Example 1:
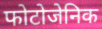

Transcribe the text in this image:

फोटोजेनिक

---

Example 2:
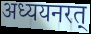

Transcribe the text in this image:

अध्ययनरत्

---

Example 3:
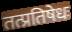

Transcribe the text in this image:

तत्प्रतिषेधः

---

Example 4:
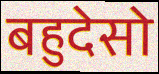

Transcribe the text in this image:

बहुदेसो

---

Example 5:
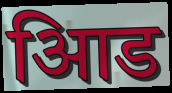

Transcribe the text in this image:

आिड